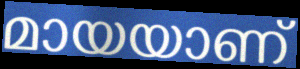
മായയാണ്